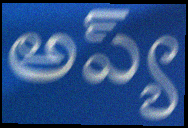
అప్య్